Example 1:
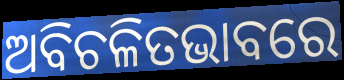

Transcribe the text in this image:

ଅବିଚଳିତଭାବରେ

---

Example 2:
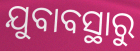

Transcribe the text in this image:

ଯୁବାବସ୍ଥାରୁ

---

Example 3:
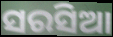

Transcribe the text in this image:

ସରସିଆ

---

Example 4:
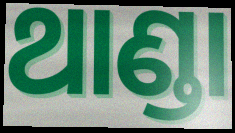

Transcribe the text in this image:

ଥାଣ୍ଡା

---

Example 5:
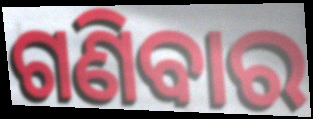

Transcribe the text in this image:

ଗଣିବାର